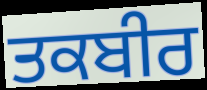
ਤਕਬੀਰ